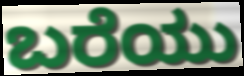
ಬರೆಯು